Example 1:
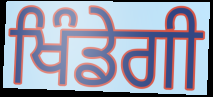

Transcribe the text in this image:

ਖਿੰਡੇਗੀ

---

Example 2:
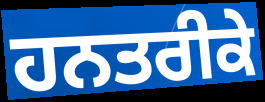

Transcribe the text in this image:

ਹਨਤਰੀਕੇ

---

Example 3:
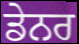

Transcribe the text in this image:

ਡੇਨਰ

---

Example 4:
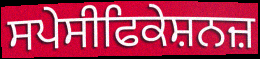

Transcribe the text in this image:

ਸਪੇਸੀਫਿਕੇਸ਼ਨਜ਼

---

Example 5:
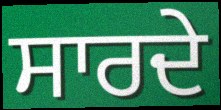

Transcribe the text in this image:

ਸਾਰਦੇ